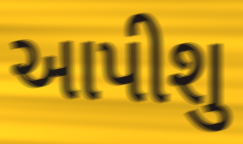
આપીશુ